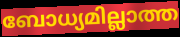
ബോധ്യമില്ലാത്ത